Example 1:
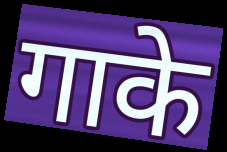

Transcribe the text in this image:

गाके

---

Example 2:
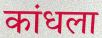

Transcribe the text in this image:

कांधला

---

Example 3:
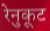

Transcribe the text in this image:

रेनुकूट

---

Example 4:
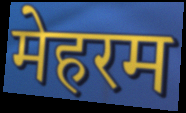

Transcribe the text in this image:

मेहरम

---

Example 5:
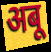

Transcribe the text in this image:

अबू